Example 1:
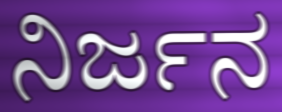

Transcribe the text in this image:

ನಿರ್ಜನ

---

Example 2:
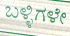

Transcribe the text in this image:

ಬಳ್ಳಿಗಳೇ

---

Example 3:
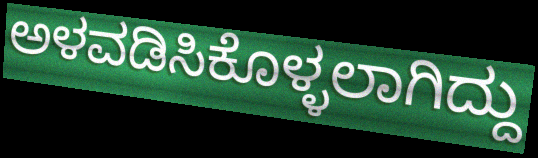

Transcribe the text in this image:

ಅಳವಡಿಸಿಕೊಳ್ಳಲಾಗಿದ್ದು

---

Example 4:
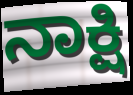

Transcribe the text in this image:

ನಾಕ್ಷಿ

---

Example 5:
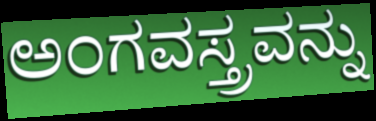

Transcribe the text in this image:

ಅಂಗವಸ್ತ್ರವನ್ನು